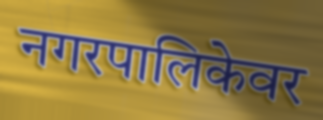
नगरपालिकेवर